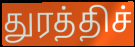
துரத்திச்